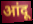
आंदू